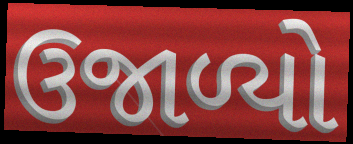
ઉજાળ્યો